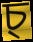
চ্